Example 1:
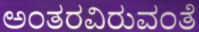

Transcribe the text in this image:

ಅಂತರವಿರುವಂತೆ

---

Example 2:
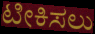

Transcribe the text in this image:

ಟೀಕಿಸಲು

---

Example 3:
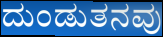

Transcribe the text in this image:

ದುಂಡುತನವು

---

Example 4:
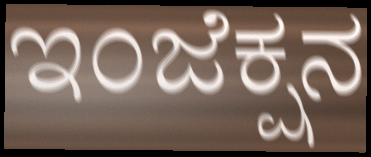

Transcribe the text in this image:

ಇಂಜೆಕ್ಷನ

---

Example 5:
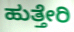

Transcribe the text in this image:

ಹುತ್ತೇರಿ